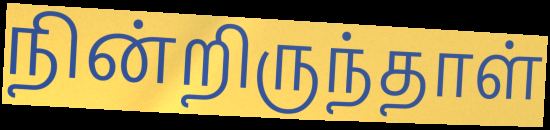
நின்றிருந்தாள்